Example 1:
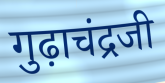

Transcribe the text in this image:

गुढ़ाचंद्रजी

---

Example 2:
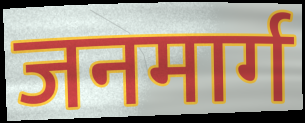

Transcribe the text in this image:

जनमार्ग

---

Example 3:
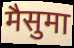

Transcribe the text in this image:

मैसुमा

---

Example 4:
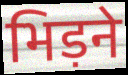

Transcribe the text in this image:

भिड़ने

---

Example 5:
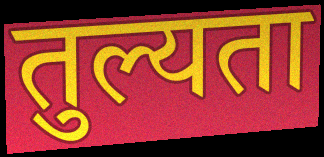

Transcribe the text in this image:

तुल्यता